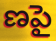
ణపై